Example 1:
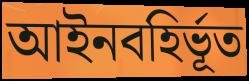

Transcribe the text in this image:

আইনবহির্ভূত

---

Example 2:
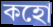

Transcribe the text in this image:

কহো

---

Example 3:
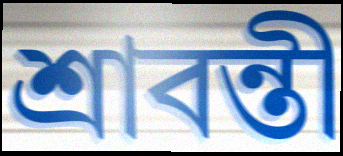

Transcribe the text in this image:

শ্রাবন্তী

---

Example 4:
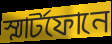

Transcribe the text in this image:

স্মার্টফোনে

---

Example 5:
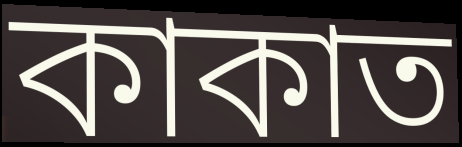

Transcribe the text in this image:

কাকাত